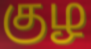
குழ